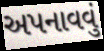
અપનાવવું